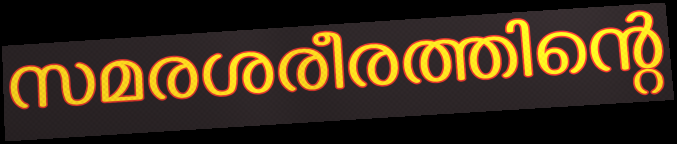
സമരശരീരത്തിന്റെ